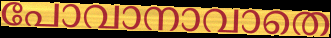
പോവാനാവാതെ